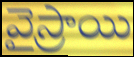
వైస్రాయి